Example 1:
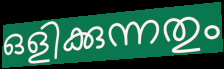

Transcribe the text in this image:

ഒളിക്കുന്നതും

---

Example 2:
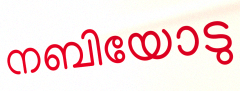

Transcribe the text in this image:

നബിയോടു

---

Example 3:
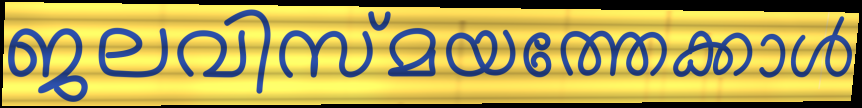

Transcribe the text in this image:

ജലവിസ്മയത്തേക്കാൾ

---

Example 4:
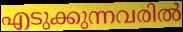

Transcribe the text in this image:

എടുക്കുന്നവരിൽ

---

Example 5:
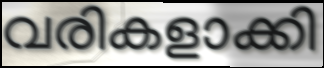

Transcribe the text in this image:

വരികളാക്കി